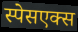
स्पेसएक्स